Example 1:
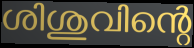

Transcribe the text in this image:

ശിശുവിന്റെ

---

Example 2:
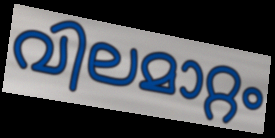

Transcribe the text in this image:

വിലമാറ്റം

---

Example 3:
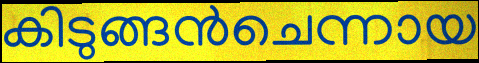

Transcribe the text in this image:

കിടുങ്ങൻചെന്നായ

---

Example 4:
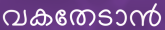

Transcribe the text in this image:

വകതേടാൻ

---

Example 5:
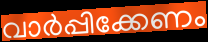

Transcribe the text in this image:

വാർപ്പിക്കേണം